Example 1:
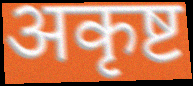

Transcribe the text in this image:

अकृष्ट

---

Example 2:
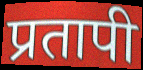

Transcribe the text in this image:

प्रतापी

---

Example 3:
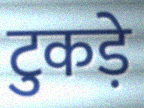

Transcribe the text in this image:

टुकड़े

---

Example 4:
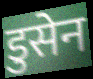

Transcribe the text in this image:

डुसेन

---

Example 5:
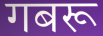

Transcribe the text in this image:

गबरू